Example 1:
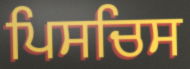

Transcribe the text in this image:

ਪਿਸਚਿਸ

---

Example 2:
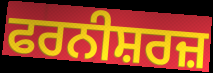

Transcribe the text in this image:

ਫਰਨੀਸ਼ਰਜ਼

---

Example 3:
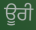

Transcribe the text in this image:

ਊਰੀ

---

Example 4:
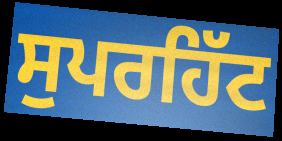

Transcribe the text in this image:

ਸੁਪਰਹਿੱਟ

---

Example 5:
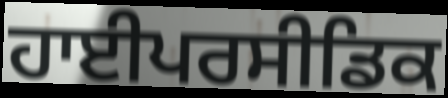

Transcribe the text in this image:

ਹਾਈਪਰਸੀਡਿਕ